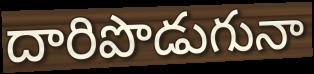
దారిపొడుగునా